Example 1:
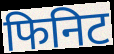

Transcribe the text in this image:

फिनिट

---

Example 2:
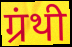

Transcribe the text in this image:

ग्रंथी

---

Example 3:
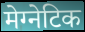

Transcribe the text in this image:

मेग्नेटिक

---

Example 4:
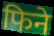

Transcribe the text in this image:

फिने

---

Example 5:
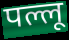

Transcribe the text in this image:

पल्लू